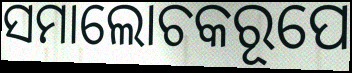
ସମାଲୋଚକରୂପେ